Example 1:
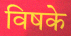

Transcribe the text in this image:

विषके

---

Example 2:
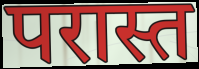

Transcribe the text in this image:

परास्त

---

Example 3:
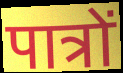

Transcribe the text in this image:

पात्रों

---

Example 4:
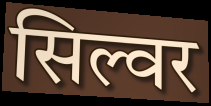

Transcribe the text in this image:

सिल्‍वर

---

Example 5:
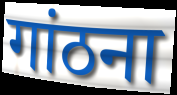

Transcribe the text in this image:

गांठना